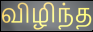
விழிந்த